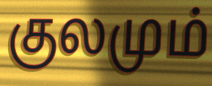
குலமும்